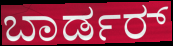
ಬಾರ್ಡರ್‍